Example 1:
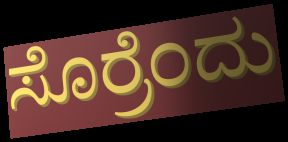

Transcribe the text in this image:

ಸೊರ್ರೆಂದು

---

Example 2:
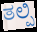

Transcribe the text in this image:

ತಲ್ಪಿ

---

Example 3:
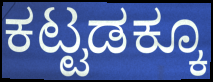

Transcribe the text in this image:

ಕಟ್ಟಡಕ್ಕೂ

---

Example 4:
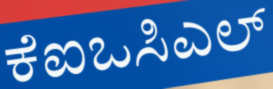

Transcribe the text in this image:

ಕೆಐಒಸಿಎಲ್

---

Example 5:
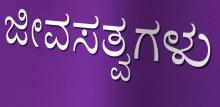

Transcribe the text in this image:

ಜೀವಸತ್ವಗಳು